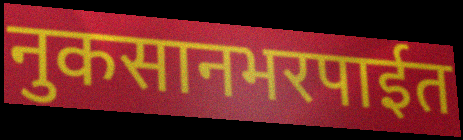
नुकसानभरपाईत